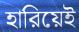
হারিয়েই